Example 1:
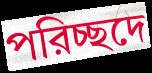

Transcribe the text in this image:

পরিচ্ছদে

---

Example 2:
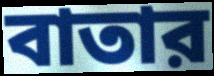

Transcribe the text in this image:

বাতার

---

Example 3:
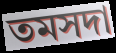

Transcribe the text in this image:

তমসদা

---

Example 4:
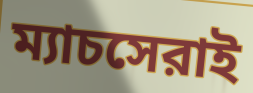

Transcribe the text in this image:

ম্যাচসেরাই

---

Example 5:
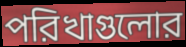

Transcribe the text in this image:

পরিখাগুলোর